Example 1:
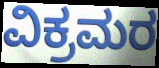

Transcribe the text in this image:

ವಿಕ್ರಮರ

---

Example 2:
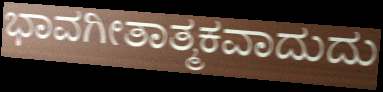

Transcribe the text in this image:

ಭಾವಗೀತಾತ್ಮಕವಾದುದು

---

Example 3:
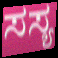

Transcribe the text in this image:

ಸಸ್ಯ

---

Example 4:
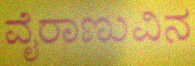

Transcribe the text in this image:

ವೈರಾಣುವಿನ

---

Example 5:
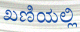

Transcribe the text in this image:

ಖಣಿಯಲ್ಲಿ